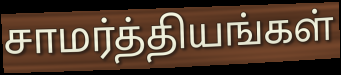
சாமர்த்தியங்கள்